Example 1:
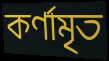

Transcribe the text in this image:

কর্ণামৃত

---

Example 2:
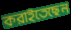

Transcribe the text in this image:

করাইতেছেন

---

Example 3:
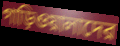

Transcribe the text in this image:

গাড়িওয়ালাদের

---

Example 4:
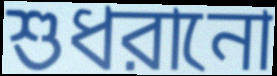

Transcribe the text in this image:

শুধরানো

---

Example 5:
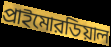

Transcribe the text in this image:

প্রাইমোরডিয়াল